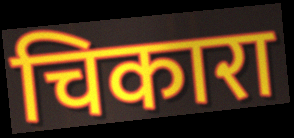
चिकारा